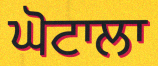
ਘੋਟਾਲਾ